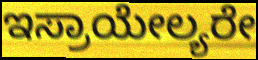
ಇಸ್ರಾಯೇಲ್ಯರೇ